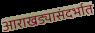
आराखड्यासंदर्भात